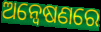
ଅନ୍ବେଷଣରେ